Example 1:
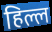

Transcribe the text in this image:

हिल्ल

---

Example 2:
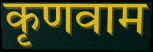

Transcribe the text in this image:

कृणवाम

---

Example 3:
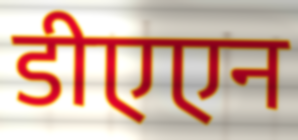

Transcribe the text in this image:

डीएएन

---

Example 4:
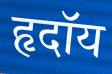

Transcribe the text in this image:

हृदॉय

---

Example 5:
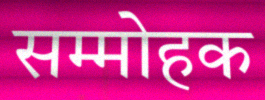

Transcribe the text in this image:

सम्मोहक